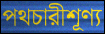
পথচারীশূণ্য